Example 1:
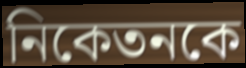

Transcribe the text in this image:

নিকেতনকে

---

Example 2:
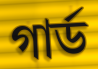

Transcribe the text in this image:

গার্ড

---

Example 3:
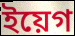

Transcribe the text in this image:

ইয়েগ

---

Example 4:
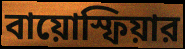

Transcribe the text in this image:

বায়োস্ফিয়ার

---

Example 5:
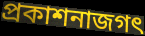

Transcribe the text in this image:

প্রকাশনাজগৎ